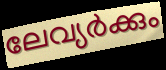
ലേവ്യർക്കും